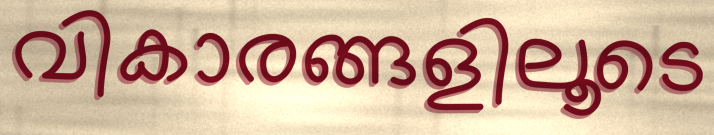
വികാരങ്ങളിലൂടെ